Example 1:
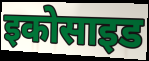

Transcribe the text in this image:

इकोसाइड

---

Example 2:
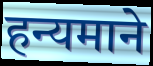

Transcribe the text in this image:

हन्यमाने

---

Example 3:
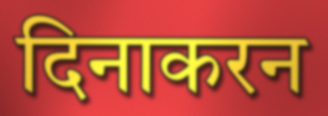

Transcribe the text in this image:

दिनाकरन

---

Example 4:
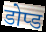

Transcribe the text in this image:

डोप्ड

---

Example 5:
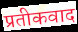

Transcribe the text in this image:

प्रतीकवाद